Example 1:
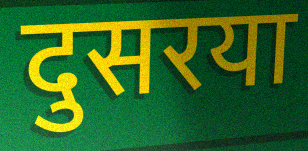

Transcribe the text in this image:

दुसरया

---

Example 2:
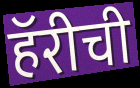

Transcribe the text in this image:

हॅरीची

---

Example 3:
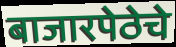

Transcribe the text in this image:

बाजारपेठेचे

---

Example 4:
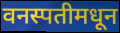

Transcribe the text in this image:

वनस्पतीमधून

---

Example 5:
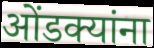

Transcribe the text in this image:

ओंडक्यांना